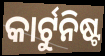
କାର୍ଟୁନିଷ୍ଟ